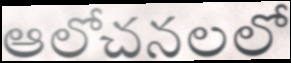
ఆలోచనలలో